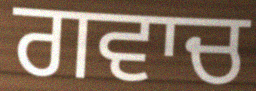
ਗਵਾਚ